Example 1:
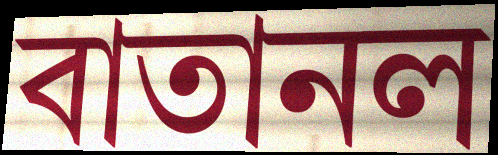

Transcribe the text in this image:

বাতানল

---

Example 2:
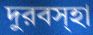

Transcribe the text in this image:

দুরবস্হা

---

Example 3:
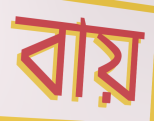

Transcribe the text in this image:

বায়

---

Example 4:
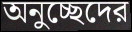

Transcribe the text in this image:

অনুচ্ছেদের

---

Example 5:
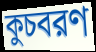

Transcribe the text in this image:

কুচবরণ